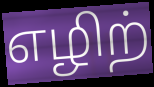
எழிற்